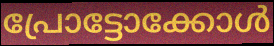
പ്രോട്ടോക്കോൾ